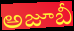
అజూబీ